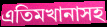
এতিমখানাসহ